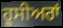
ਹੂਸੀਅਰਾਂ